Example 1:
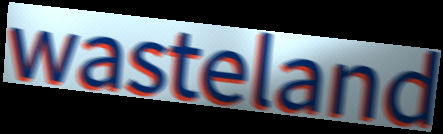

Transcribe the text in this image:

wasteland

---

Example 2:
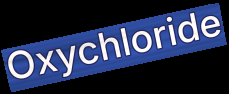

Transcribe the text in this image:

Oxychloride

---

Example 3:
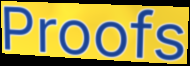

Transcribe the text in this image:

Proofs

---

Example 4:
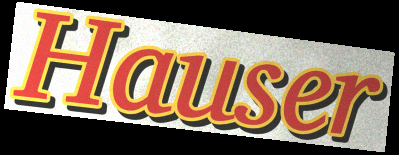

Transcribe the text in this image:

Hauser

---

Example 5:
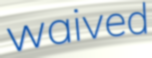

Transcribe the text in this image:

waived